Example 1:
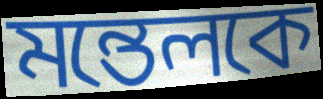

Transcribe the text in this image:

মন্তেলকে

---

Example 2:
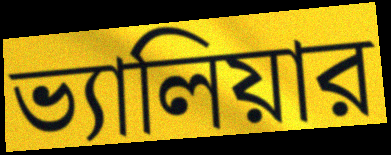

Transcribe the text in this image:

ভ্যালিয়ার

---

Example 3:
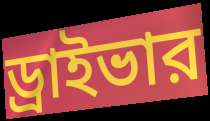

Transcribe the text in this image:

ড্রাইভার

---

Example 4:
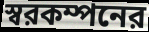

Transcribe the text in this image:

স্বরকম্পনের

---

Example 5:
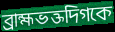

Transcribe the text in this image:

ব্রাহ্মভক্তদিগকে